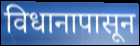
विधानापासून